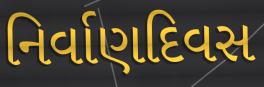
નિર્વાણદિવસ